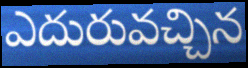
ఎదురువచ్చిన